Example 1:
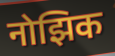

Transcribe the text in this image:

नोझिक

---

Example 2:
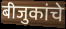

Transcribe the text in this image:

बीजुकांचे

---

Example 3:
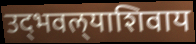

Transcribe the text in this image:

उद्भवल्याशिवाय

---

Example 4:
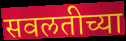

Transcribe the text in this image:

सवलतीच्या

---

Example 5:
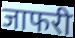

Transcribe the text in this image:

जाफरी